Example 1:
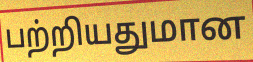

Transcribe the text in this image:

பற்றியதுமான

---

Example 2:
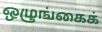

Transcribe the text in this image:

ஒழுங்கைக்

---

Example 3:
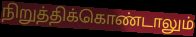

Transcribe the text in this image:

நிறுத்திக்கொண்டாலும்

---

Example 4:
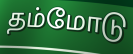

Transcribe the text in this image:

தம்மோடு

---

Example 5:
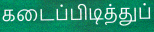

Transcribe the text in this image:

கடைப்பிடித்துப்